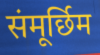
संमूर्छिम